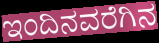
ಇಂದಿನವರೆಗಿನ